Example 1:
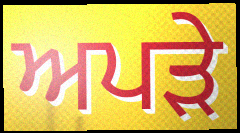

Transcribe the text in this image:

ਅਪੜੇ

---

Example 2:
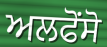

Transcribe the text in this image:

ਅਲਫੋਂਸੋ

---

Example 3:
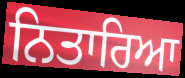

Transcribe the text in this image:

ਨਿਤਾਰਿਆ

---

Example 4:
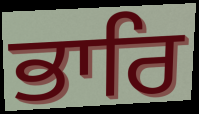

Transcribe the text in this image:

ਭਾਰਿ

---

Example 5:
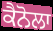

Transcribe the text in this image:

ਕੈਨੋਲਾ